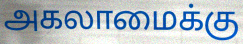
அகலாமைக்கு